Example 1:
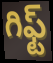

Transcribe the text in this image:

గిఫ్ట్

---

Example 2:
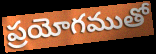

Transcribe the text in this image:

ప్రయోగముతో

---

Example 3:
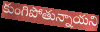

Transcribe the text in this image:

కుంగిపోతున్నాయని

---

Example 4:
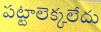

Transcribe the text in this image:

పట్టాలెక్కలేదు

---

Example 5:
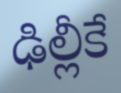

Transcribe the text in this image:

ఢిల్లీకే